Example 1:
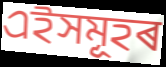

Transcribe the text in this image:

এইসমূহৰ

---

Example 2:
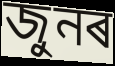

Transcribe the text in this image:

জুনৰ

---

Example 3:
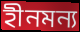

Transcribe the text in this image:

হীনমন্য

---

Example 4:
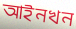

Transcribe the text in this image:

আইনখন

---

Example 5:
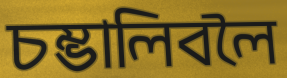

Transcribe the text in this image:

চম্ভালিবলৈ